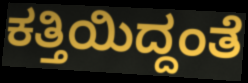
ಕತ್ತಿಯಿದ್ದಂತೆ